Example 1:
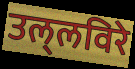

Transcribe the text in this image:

उल्लविरे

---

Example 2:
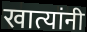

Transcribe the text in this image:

खात्यांनी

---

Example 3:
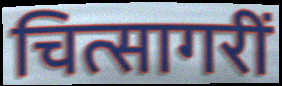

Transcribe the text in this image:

चित्सागरीं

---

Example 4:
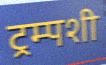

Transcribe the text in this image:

ट्रम्पशी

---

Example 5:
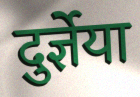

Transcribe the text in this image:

दुर्ज्ञेया